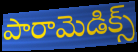
పారామెడిక్స్